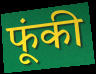
फूंकी